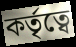
কর্তৃত্বে